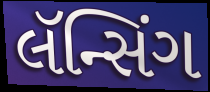
લૅન્સિંગ